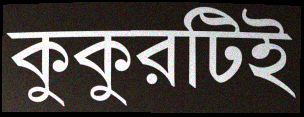
কুকুরটিই